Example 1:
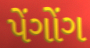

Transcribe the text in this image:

પેંગોંગ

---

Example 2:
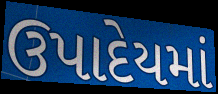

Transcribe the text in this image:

ઉપાદેયમાં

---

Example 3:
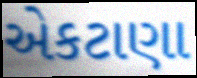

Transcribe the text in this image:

એકટાણા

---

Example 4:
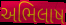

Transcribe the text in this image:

અભિલાષ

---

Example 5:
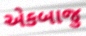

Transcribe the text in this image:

એકબાજુ